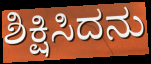
ಶಿಕ್ಷಿಸಿದನು